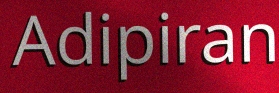
Adipiran